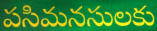
పసిమనసులకు